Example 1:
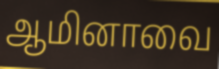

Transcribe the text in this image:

ஆமினாவை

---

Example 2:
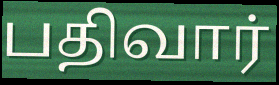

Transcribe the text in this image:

பதிவார்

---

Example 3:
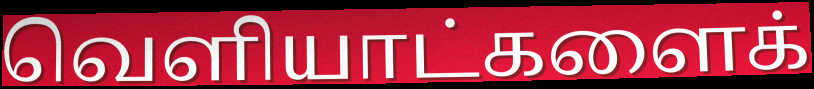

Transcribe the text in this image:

வெளியாட்களைக்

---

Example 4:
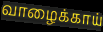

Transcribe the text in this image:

வாழைக்காய்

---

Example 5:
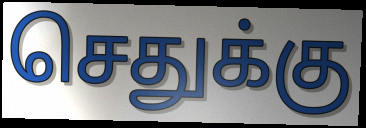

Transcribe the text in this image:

செதுக்கு